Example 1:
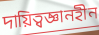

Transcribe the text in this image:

দায়িত্বজ্ঞানহীন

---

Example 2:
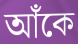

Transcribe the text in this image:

আঁকে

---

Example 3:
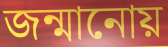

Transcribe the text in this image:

জন্মানোয়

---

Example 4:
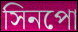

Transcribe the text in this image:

সিনপো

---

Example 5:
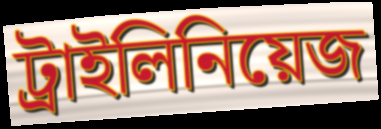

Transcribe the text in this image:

ট্রাইলিনিয়েজ